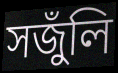
সজুঁলি